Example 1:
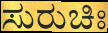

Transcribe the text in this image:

ಸುರುಚಿಃ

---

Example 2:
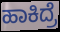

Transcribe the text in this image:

ಹಾಕಿದ್ರೆ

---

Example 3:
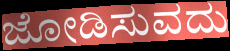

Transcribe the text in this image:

ಜೋಡಿಸುವದು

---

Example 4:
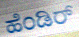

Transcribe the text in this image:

ಹೆಂಡಿರ್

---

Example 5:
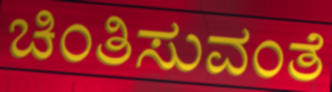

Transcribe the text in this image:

ಚಿಂತಿಸುವಂತೆ